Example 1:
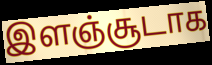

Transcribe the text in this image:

இளஞ்சூடாக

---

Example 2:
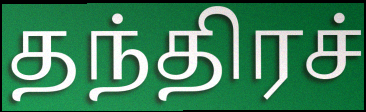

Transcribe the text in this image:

தந்திரச்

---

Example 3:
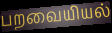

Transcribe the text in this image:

பறவையியல்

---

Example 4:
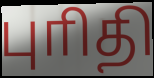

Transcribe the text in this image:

புரிதி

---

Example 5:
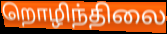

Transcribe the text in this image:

றொழிந்திலை